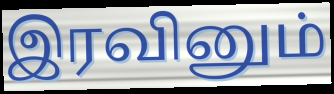
இரவினும்